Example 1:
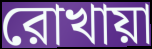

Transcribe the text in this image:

রোখায়া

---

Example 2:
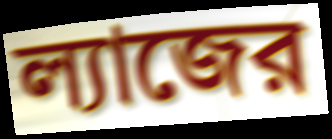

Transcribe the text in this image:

ল্যাজের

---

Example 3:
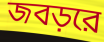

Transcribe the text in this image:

জবড়রে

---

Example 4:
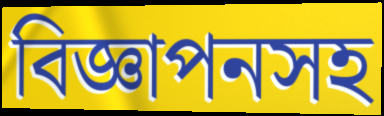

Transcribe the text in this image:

বিজ্ঞাপনসহ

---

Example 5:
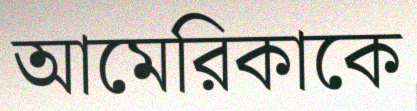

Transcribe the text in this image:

আমেরিকাকে